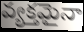
వ్యక్తమైనా